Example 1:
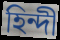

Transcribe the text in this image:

হিন্দী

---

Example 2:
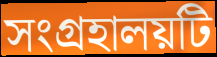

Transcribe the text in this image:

সংগ্রহালয়টি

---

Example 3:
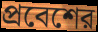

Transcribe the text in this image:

প্রবেশের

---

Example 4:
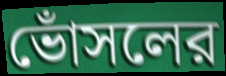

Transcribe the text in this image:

ভোঁসলের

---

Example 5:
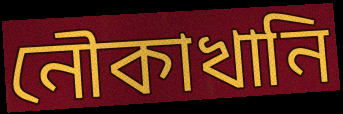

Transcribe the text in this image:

নৌকাখানি